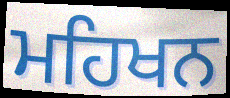
ਮਹਿਖਨ